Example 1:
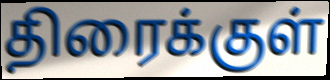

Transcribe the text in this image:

திரைக்குள்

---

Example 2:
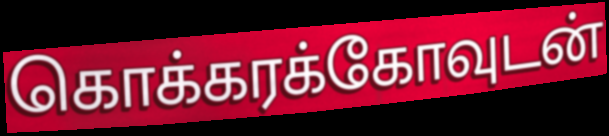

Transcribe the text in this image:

கொக்கரக்கோவுடன்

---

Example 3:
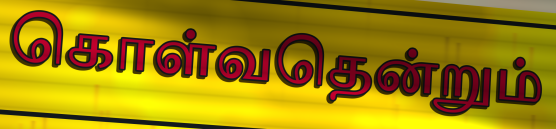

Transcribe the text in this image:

கொள்வதென்றும்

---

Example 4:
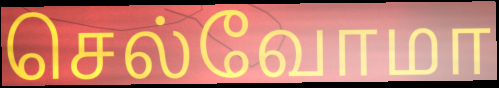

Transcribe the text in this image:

செல்வோமா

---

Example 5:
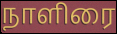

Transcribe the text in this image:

நாளிரை